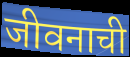
जीवनाची